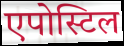
एपोस्टिल